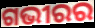
ଗଭୀରର